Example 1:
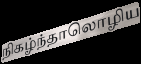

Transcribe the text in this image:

நிகழ்ந்தாலொழிய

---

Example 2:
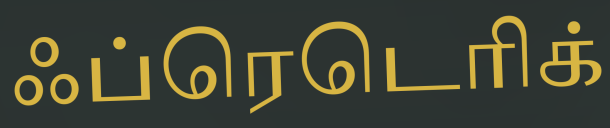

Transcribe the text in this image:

ஃப்ரெடெரிக்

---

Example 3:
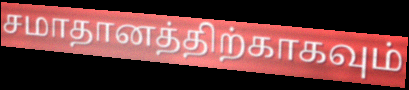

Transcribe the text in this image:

சமாதானத்திற்காகவும்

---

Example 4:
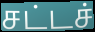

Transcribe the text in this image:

சட்டச்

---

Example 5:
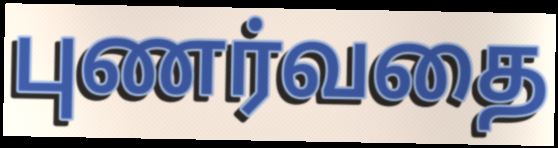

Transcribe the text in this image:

புணர்வதை